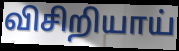
விசிறியாய்